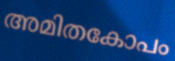
അമിതകോപം